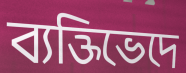
ব্যক্তিভেদে